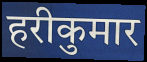
हरीकुमार